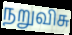
நறுவிசு